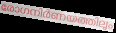
രോഗനിർണയത്തിലും